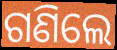
ଗଣିଲେ